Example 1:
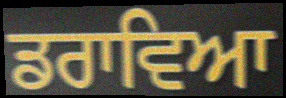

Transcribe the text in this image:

ਡਰਾਵਿਆ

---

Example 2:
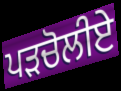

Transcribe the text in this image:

ਪੜਚੋਲੀਏ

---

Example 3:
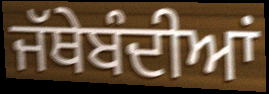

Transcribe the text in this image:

ਜੱਥੇਬੰਦੀਆਂ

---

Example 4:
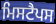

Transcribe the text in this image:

ਮਿਸਟੈਪਸ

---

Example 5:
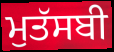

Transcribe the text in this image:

ਮੁਤੱਸਬੀ